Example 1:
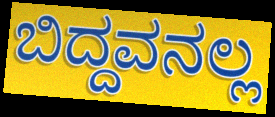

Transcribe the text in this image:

ಬಿದ್ದವನಲ್ಲ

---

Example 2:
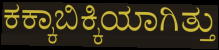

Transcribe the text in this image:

ಕಕ್ಕಾಬಿಕ್ಕಿಯಾಗಿತ್ತು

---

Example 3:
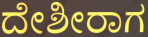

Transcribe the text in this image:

ದೇಶೀರಾಗ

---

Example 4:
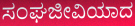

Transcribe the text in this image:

ಸಂಘಜೀವಿಯಾದ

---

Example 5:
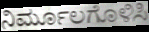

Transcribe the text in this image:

ನಿರ್ಮೂಲಗೊಳಿಸಿ